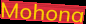
Mohona